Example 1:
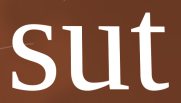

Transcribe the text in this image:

sut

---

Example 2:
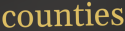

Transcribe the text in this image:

counties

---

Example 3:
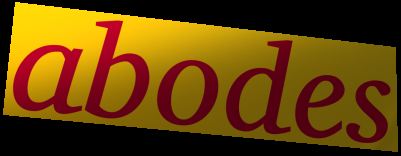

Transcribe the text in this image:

abodes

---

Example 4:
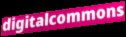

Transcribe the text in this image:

digitalcommons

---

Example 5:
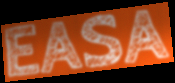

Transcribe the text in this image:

EASA